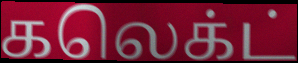
கலெக்ட்